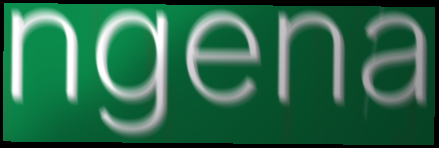
ngena